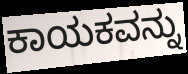
ಕಾಯಕವನ್ನು